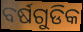
ବର୍ଷଗୁଡିକ